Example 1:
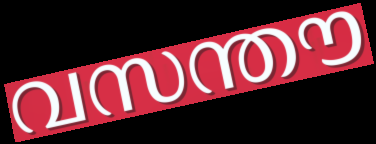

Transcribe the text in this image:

വസന്തൗ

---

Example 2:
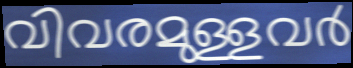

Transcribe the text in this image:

വിവരമുള്ളവർ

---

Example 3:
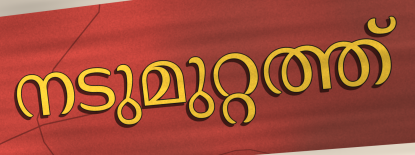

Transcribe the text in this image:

നടുമുറ്റത്ത്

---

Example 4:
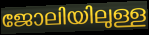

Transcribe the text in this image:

ജോലിയിലുള്ള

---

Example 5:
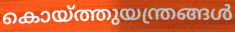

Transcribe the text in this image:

കൊയ്ത്തുയന്ത്രങ്ങൾ